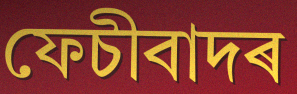
ফেচীবাদৰ